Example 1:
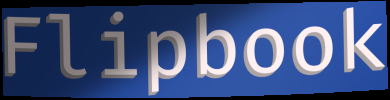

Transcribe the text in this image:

Flipbook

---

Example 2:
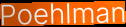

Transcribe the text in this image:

Poehlman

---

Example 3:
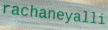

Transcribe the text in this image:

rachaneyalli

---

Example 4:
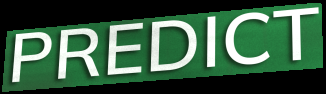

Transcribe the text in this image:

PREDICT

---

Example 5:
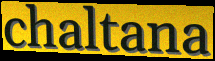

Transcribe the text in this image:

chaltana